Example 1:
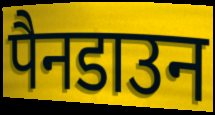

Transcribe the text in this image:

पैनडाउन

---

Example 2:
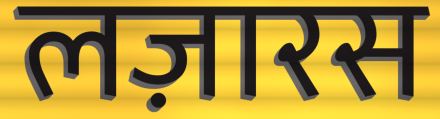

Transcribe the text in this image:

लज़ारस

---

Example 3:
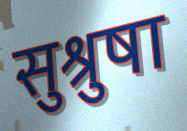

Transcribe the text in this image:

सुश्रुषा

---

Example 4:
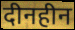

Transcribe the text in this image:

दीनहीन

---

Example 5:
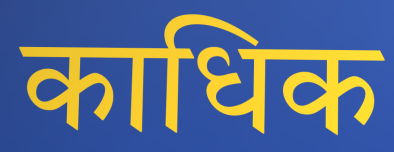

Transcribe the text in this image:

काधिक